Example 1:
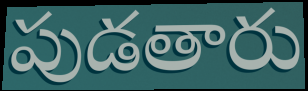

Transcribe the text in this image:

పుడతారు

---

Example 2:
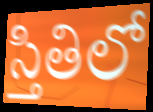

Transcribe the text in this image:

స్తితిలో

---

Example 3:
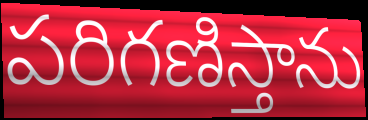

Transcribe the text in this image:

పరిగణిస్తాను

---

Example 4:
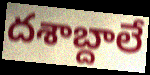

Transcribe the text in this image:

దశాబ్దాలే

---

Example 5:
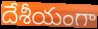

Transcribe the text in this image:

దేశీయంగా